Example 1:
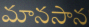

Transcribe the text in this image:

మానసాన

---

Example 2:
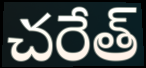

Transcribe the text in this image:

చరేత్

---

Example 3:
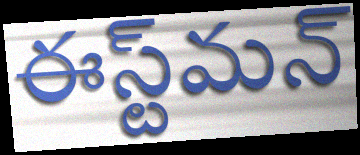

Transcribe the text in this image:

ఈస్ట్‌మన్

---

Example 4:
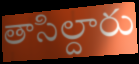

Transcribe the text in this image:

తాసిల్దారు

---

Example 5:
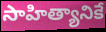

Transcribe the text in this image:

సాహిత్యానికే